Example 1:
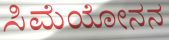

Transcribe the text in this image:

ಸಿಮೆಯೋನನ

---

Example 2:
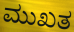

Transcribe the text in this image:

ಮುಖತ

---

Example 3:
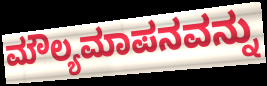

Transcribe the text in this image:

ಮೌಲ್ಯಮಾಪನವನ್ನು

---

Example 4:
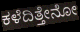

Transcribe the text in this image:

ಕಳೆದಿತ್ತೇನೋ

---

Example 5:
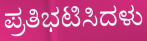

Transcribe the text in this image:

ಪ್ರತಿಭಟಿಸಿದಳು